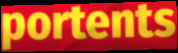
portents